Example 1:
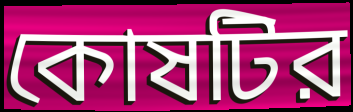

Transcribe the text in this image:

কোষটির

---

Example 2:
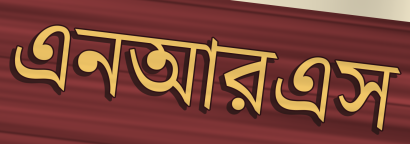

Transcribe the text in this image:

এনআরএস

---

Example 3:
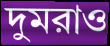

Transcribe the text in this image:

দুমরাও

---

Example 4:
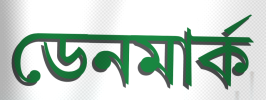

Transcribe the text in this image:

ডেনমার্ক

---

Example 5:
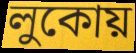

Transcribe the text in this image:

লুকোয়